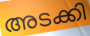
അടക്കി